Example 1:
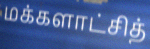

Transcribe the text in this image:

மக்களாட்சித்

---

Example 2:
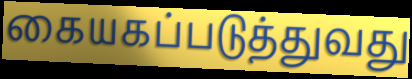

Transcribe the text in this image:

கையகப்படுத்துவது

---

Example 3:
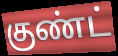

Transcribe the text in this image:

குண்ட்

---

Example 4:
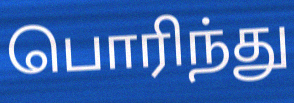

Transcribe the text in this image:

பொரிந்து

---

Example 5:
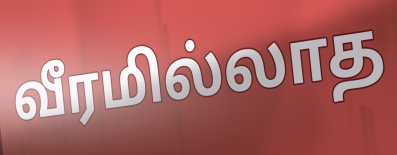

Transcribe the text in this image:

வீரமில்லாத